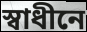
স্বাধীনে